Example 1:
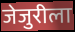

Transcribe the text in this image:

जेजुरीला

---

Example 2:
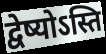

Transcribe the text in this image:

द्वेष्योऽस्ति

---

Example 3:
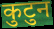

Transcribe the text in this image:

कुटुन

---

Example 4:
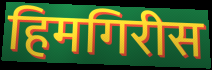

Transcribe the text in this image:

हिमगिरीस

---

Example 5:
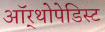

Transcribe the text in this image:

ऑर्थोपेडिस्ट